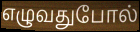
எழுவதுபோல்